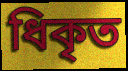
ধিকৃত